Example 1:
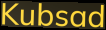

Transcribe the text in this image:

Kubsad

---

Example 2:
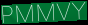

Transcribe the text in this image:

PMMVY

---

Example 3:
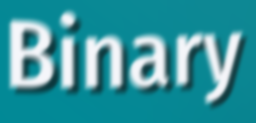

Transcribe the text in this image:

Binary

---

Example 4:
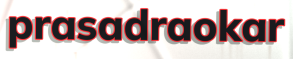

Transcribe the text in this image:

prasadraokar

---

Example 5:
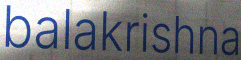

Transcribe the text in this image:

balakrishna